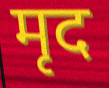
मृद